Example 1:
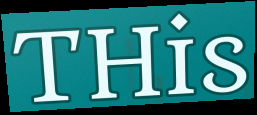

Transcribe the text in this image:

THis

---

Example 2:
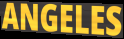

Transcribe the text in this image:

ANGELES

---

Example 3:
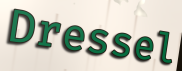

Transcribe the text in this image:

Dressel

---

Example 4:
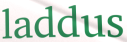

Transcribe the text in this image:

laddus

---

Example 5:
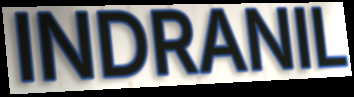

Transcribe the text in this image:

INDRANIL